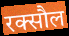
रक्‍सौल